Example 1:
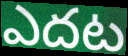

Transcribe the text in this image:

ఎదట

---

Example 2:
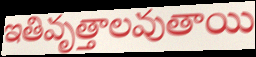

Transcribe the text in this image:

ఇతివృత్తాలవుతాయి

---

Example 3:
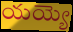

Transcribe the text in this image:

యయ్యె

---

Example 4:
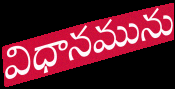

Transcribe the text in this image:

విధానమును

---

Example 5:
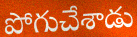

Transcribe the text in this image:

పోగుచేశాడు